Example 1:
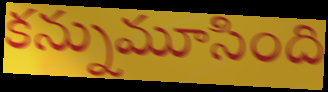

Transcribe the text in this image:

కన్నుమూసింది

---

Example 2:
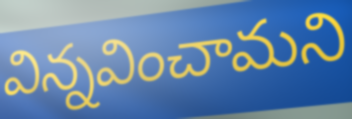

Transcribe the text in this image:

విన్నవించామని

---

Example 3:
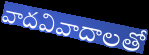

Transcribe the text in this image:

వాదవివాదాలతో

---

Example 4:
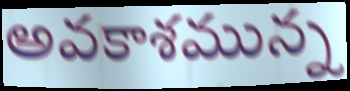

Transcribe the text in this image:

అవకాశమున్న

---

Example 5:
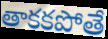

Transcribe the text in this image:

తాకకపోతే